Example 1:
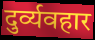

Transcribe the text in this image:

दुर्व्यवहार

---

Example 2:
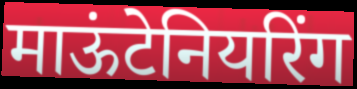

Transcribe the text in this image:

माऊंटेनियरिंग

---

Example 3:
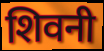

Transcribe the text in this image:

शिवनी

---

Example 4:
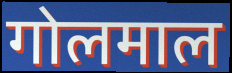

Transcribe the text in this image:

गोलमाल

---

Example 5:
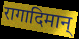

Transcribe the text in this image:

रागादिमान्